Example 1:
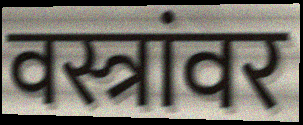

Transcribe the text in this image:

वस्त्रांवर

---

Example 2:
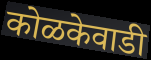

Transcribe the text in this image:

कोळकेवाडी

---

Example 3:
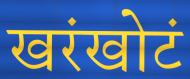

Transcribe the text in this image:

खरंखोटं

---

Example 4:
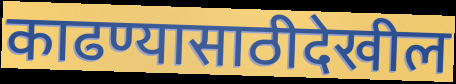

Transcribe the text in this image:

काढण्यासाठीदेखील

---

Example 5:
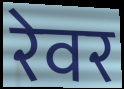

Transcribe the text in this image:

रेवर